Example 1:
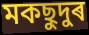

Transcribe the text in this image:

মকছুদুৰ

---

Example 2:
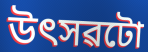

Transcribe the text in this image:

উৎসৱটো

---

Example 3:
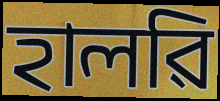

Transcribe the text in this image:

হালৱি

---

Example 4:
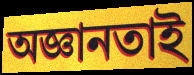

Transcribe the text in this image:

অজ্ঞানতাই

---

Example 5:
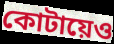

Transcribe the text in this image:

কোটায়েও